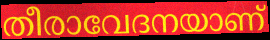
തീരാവേദനയാണ്